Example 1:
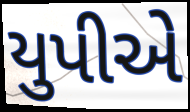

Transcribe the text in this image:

યુપીએ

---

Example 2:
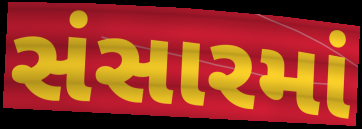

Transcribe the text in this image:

સંસારમાં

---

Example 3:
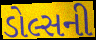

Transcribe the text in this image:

ડોલ્સની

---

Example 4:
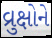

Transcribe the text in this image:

વ્રુક્ષોને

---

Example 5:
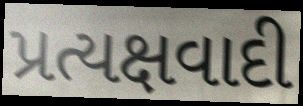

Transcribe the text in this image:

પ્રત્યક્ષવાદી